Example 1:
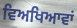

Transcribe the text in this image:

ਵਿਅਖਿਆਵਾਂ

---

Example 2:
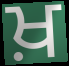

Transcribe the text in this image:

ਖ਼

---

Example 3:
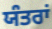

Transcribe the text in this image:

ਯੰਤਰਾਂ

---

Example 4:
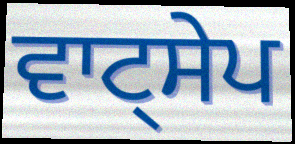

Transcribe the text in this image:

ਵਾਟ੍ਸੇਪ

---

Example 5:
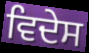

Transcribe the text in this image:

ਵਿਦੇਸ